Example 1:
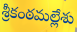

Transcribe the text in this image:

శ్రీకంఠమల్లేశు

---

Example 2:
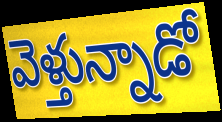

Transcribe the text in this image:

వెళ్తున్నాడో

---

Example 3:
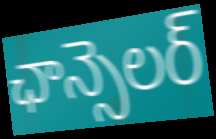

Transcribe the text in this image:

ఛాన్సెలర్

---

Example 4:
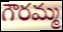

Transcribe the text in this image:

గౌరమ్మ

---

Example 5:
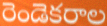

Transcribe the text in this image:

రెండెకరాల